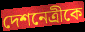
দেশনেত্রীকে